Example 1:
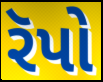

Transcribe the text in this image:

રૅપો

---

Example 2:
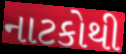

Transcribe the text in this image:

નાટકોથી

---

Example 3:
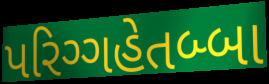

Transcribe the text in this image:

પરિગ્ગહેતબ્બા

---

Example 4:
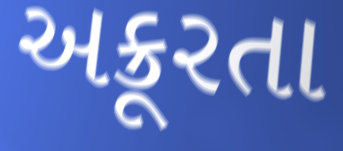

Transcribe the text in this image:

અક્રૂરતા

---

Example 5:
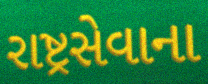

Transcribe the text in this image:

રાષ્ટ્રસેવાના